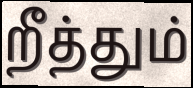
றீத்தும்